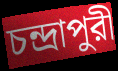
চন্দ্রাপুরী